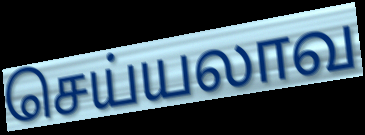
செய்யலாவ